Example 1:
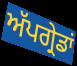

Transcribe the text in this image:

ਅੱਪਗ੍ਰੇਡਾਂ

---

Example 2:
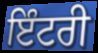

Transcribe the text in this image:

ਇੰਟਰੀ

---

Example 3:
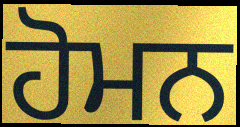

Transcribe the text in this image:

ਹੋਮਨ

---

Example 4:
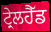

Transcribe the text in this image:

ਟ੍ਰੇਲਹੈੱਡ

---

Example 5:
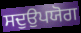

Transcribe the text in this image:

ਸਦੁਉਪਯੋਗ